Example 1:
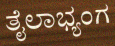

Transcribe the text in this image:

ತೈಲಾಭ್ಯಂಗ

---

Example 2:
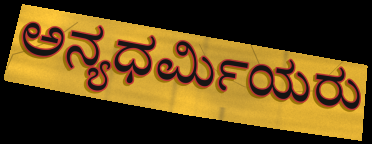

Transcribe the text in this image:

ಅನ್ಯಧರ್ಮಿಯರು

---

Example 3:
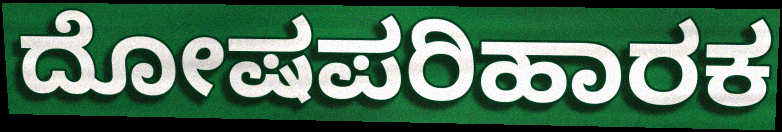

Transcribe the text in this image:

ದೋಷಪರಿಹಾರಕ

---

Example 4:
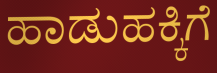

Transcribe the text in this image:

ಹಾಡುಹಕ್ಕಿಗೆ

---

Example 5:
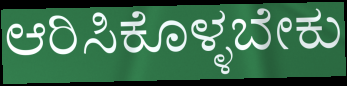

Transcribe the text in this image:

ಆರಿಸಿಕೊಳ್ಳಬೇಕು